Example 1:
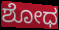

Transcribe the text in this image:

ಶೋಧ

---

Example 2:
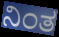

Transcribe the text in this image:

ನಿಂತ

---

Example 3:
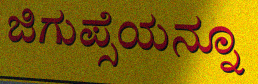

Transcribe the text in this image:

ಜಿಗುಪ್ಸೆಯನ್ನೂ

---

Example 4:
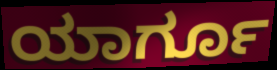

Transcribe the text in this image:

ಯಾರ್ಗೂ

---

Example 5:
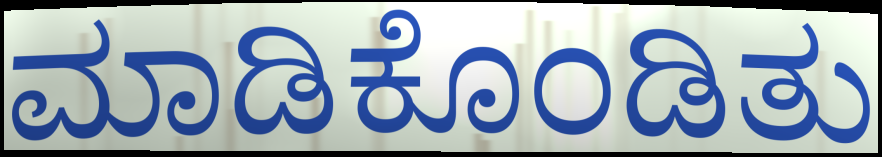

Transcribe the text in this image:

ಮಾಡಿಕೊಂಡಿತು